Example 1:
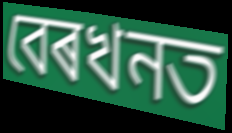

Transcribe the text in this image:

বেৰখনত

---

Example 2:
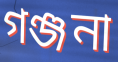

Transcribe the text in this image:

গঞ্জনা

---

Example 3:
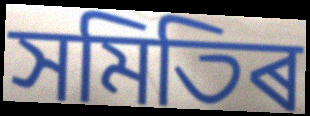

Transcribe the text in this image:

সমিতিৰ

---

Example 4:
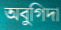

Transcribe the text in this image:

অবুগিদা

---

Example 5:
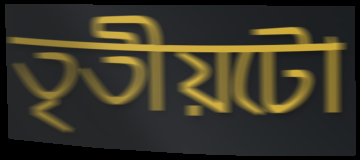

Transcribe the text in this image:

তৃতীয়টো